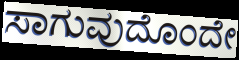
ಸಾಗುವುದೊಂದೇ